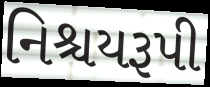
નિશ્ચયરૂપી